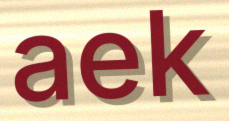
aek